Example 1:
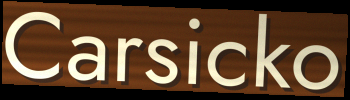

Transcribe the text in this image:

Carsicko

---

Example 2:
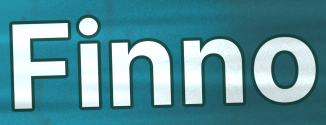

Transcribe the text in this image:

Finno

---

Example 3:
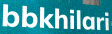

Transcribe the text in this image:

bbkhilari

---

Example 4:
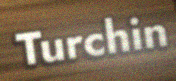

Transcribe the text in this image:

Turchin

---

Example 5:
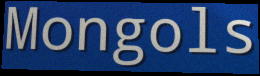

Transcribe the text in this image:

Mongols